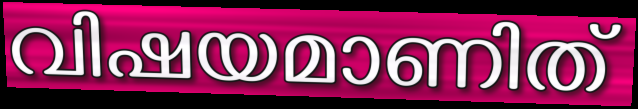
വിഷയമാണിത്